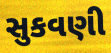
સુકવણી